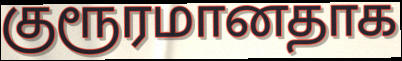
குரூரமானதாக